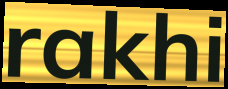
rakhi